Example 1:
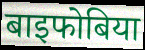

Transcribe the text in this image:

बाइफोबिया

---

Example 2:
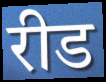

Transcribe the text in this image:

रीड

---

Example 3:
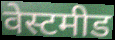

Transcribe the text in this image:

वेस्टमीड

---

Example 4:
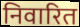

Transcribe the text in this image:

निवारित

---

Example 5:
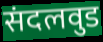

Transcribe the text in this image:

संदलवुड